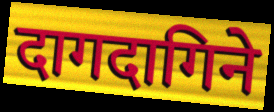
दागदागिने